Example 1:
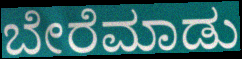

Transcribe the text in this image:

ಬೇರೆಮಾಡು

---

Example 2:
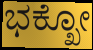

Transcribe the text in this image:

ಭಕ್ಖೋ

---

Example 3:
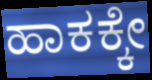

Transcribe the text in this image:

ಹಾಕಕ್ಕೇ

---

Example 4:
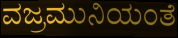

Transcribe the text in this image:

ವಜ್ರಮುನಿಯಂತೆ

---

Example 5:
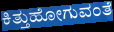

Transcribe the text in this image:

ಕಿತ್ತುಹೋಗುವಂತೆ